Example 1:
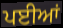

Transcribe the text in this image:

ਪਈਆਂ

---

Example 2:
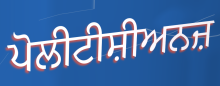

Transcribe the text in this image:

ਪੋਲੀਟੀਸ਼ੀਅਨਜ਼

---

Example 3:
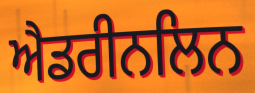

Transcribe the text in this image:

ਐਡਰੀਨਲਿਨ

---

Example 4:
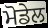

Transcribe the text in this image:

ਮੋਡੇਲ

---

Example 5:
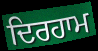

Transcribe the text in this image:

ਦਿਰਹਾਮ